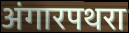
अंगारपथरा